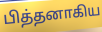
பித்தனாகிய